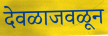
देवळाजवळून